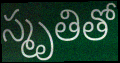
స్మృతితో